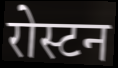
रोस्टन